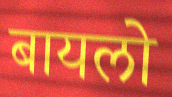
बायलो